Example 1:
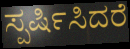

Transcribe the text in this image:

ಸ್ಪರ್ಷಿಸಿದರೆ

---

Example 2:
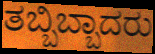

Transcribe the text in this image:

ತಬ್ಬಿಬ್ಬಾದರು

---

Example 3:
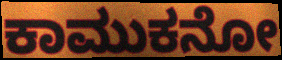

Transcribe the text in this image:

ಕಾಮುಕನೋ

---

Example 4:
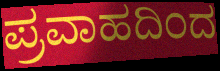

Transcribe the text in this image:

ಪ್ರವಾಹದಿಂದ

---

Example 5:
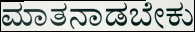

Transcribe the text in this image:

ಮಾತನಾಡಬೇಕು